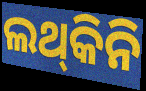
ଲଥ୍‌କିନି